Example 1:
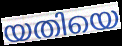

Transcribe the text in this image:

യതിയെ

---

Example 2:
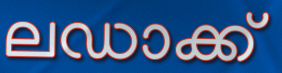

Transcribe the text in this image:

ലഡാക്ക്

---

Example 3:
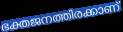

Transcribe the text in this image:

ഭക്തജനത്തിരക്കാണ്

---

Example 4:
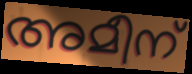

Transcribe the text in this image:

അമീന്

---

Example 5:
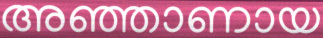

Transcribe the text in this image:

അഞ്ഞാണായ